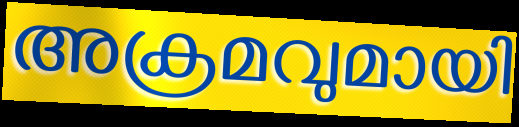
അക്രമവുമായി